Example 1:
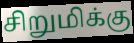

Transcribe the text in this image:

சிறுமிக்கு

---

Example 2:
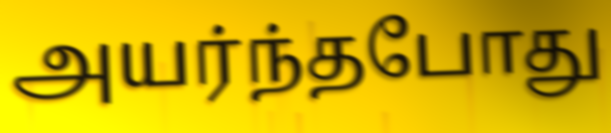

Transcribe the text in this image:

அயர்ந்தபோது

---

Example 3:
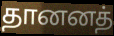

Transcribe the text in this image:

தானனத்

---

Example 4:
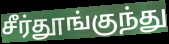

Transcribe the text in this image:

சீர்தூங்குந்து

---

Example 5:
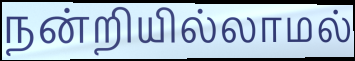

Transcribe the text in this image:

நன்றியில்லாமல்